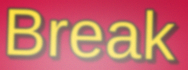
Break